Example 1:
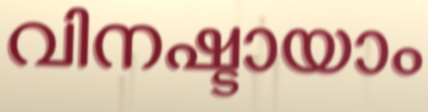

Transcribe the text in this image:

വിനഷ്ടായാം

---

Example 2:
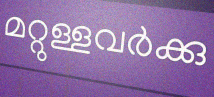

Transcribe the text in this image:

മറ്റുള്ളവർക്കു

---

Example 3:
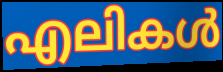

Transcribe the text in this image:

എലികൾ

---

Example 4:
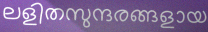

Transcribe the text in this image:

ലളിതസുന്ദരങ്ങളായ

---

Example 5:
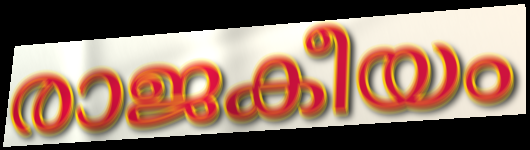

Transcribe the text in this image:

രാജകീയം